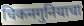
चिकनगुनियाचा